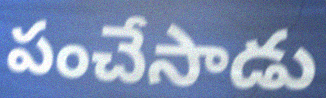
పంచేసాడు